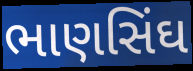
ભાણસિંઘ